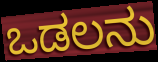
ಒಡಲನು